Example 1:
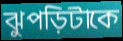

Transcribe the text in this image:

ঝুপড়িটাকে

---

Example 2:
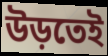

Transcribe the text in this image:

উড়তেই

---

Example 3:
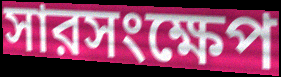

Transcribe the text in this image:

সারসংক্ষেপ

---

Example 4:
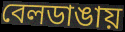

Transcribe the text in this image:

বেলডাঙায়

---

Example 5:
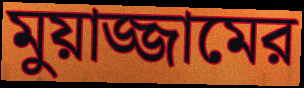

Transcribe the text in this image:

মুয়াজ্জামের